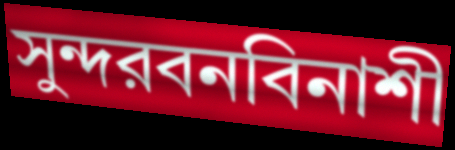
সুন্দরবনবিনাশী